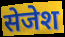
सेजेश